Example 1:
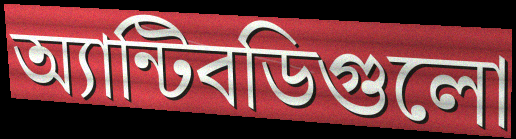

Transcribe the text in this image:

অ্যান্টিবডিগুলো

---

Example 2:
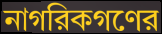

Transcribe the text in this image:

নাগরিকগণের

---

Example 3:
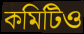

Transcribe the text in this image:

কমিটিও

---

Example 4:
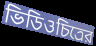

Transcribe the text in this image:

ভিডিওচিত্রের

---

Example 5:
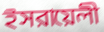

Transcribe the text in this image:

ইসরায়েলী